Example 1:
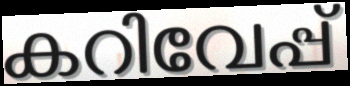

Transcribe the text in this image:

കറിവേപ്പ്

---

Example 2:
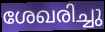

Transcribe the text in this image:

ശേഖരിച്ചു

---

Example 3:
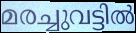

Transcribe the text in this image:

മരച്ചുവട്ടിൽ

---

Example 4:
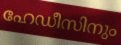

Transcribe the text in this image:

ഹേഡീസിനും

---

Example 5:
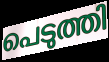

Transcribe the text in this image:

പെടുത്തി